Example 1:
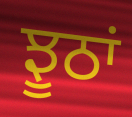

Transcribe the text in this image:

ਝੂਠਾਂ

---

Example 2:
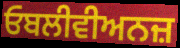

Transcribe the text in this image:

ਓਬਲੀਵੀਅਨਜ਼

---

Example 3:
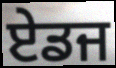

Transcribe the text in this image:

ਏਡਜ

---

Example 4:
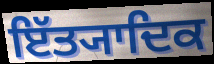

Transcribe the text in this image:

ਇੱਤ੍ਯਾਦਿਕ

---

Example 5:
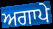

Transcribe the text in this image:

ਅਗਾਪੇ